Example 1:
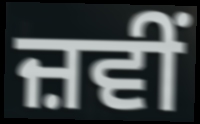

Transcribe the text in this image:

ਜ਼ਵੀਂ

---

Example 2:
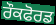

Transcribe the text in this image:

ਰੌਕਫੋਰਡ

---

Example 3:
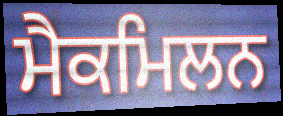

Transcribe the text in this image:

ਮੈਕਮਿਲਨ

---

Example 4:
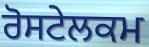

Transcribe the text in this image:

ਰੋਸਟੇਲਕਮ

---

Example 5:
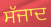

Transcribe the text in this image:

ਸੱਜਾਦ